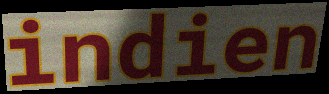
indien